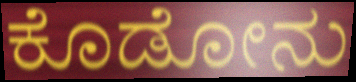
ಕೊಡೋನು